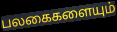
பலகைகளையும்